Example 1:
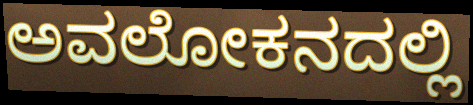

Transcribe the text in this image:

ಅವಲೋಕನದಲ್ಲಿ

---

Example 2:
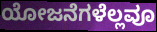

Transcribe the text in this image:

ಯೋಜನೆಗಳೆಲ್ಲವೂ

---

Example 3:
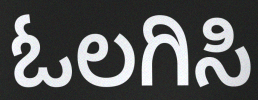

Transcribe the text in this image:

ಓಲಗಿಸಿ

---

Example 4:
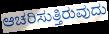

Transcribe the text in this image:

ಆಚರಿಸುತ್ತಿರುವುದು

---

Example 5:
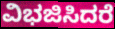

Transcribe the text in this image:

ವಿಭಜಿಸಿದರೆ